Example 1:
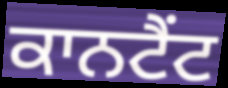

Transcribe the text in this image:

ਕਾਨਟੈਂਟ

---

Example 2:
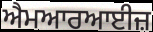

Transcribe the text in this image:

ਐਮਆਰਆਈਜ਼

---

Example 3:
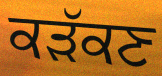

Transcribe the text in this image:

ਕੜੱਕਣ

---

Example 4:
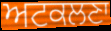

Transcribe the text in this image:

ਅਟਕਲਣਾ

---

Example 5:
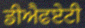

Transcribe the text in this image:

ਡੀਐਫਏਟੀ